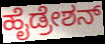
ಹೈಡ್ರೇಶನ್